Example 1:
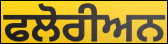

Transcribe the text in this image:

ਫਲੋਰੀਅਨ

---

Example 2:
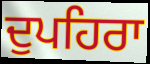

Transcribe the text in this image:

ਦੁਪਹਿਰਾ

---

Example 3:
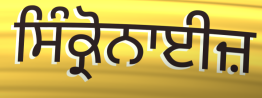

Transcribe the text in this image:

ਸਿੰਕ੍ਰੋਨਾਈਜ਼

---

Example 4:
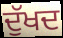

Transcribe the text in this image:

ਦੁੱਖਦ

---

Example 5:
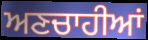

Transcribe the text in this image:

ਅਣਚਾਹੀਆਂ